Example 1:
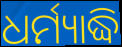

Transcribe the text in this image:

ଧର୍ମ୍ୟାଦ୍ଧି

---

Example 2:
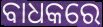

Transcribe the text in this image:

ବାଧକରେ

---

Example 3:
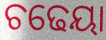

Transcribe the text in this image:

ଚଢେୟା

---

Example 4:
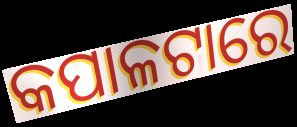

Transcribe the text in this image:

କପାଳଟାରେ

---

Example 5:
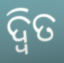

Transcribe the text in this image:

ଦ୍ବିତ